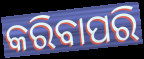
କରିବାପରି